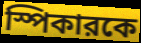
স্পিকারকে